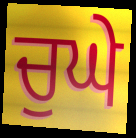
ਚੁਘੇ